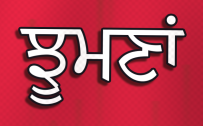
ਝੂਮਣਾਂ